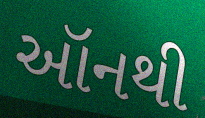
ઑનથી